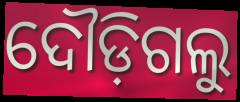
ଦୌଡ଼ିଗଲୁ